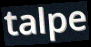
talpe